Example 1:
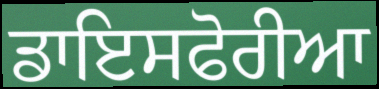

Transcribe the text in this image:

ਡਾਇਸਫੋਰੀਆ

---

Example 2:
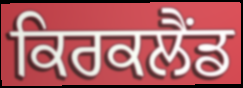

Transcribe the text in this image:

ਕਿਰਕਲੈਂਡ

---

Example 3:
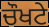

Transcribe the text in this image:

ਚੌਖਟੇ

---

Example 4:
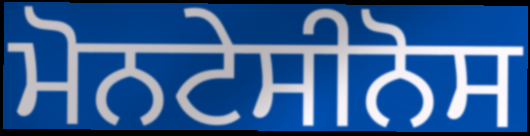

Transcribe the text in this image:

ਮੋਨਟੇਸੀਨੋਸ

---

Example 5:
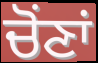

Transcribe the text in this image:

ਚੋਂਣਾਂ